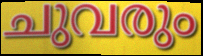
ചുവരും